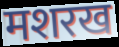
मशरख